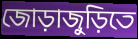
জোড়াজুড়িতে